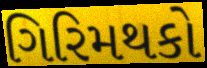
ગિરિમથકો